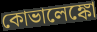
কোভালেঙ্কো